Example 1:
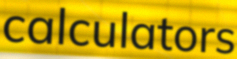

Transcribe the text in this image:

calculators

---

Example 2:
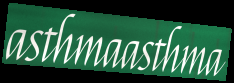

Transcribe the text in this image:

asthmaasthma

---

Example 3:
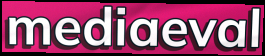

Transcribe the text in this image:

mediaeval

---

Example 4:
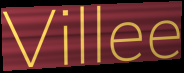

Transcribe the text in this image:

Villee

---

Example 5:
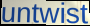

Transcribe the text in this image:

untwist